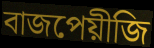
বাজপেয়ীজি